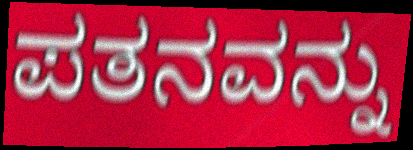
ಪತನವನ್ನು